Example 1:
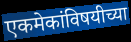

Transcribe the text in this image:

एकमेकांविषयीच्या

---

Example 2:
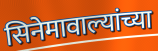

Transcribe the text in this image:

सिनेमावाल्यांच्या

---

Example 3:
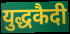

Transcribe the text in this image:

युद्धकैदी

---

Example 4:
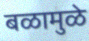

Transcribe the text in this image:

बळामुळे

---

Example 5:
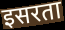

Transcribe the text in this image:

इसरता